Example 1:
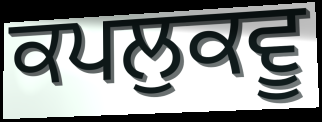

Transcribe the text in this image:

ਕਪਲੁਕਵੂ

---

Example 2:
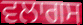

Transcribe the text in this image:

ਵਲਾਗਸ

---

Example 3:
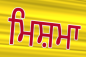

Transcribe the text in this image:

ਮਿਸ਼ਮਾ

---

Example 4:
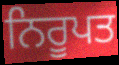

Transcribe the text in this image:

ਨਿਰੂਪਤ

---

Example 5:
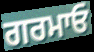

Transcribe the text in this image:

ਗਰਮਾਓ